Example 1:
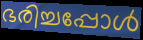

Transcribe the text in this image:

ഭരിച്ചപ്പോൾ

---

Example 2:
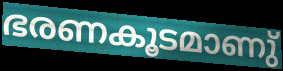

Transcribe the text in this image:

ഭരണകൂടമാണു്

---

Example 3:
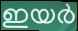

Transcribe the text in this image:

ഇയർ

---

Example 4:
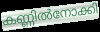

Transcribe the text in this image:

കണ്ണിൽനോക്കി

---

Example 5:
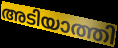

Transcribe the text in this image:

അടിയാത്തി